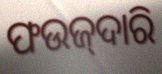
ଫଉଜ୍‌ଦାରି